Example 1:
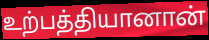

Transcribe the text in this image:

உற்பத்தியானான்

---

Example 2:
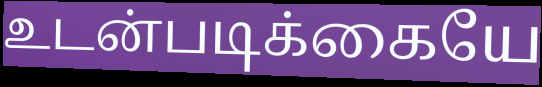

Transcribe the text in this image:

உடன்படிக்கையே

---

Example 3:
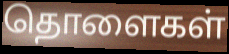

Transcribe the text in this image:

தொளைகள்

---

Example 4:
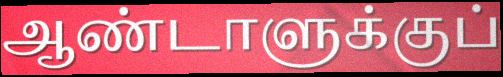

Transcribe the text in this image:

ஆண்டாளுக்குப்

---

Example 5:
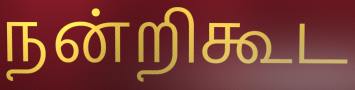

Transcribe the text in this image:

நன்றிகூட